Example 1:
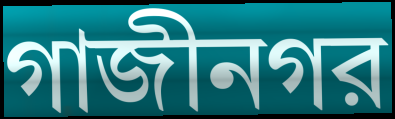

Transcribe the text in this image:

গাজীনগর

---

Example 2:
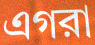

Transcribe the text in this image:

এগরা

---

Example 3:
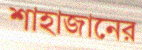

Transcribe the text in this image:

শাহাজানের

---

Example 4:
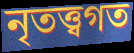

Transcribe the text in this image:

নৃতত্ত্বগত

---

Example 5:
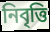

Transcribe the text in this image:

নিবৃত্তি